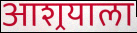
आश्रयाला